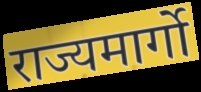
राज्यमार्गो